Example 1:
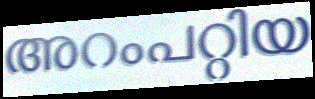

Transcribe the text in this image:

അറംപറ്റിയ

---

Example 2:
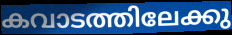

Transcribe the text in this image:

കവാടത്തിലേക്കു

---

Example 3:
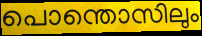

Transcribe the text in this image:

പൊന്തൊസിലും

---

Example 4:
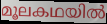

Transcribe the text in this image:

മൂലകഥയിൽ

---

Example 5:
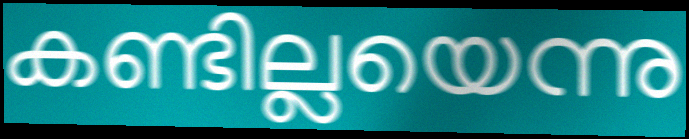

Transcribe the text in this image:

കണ്ടില്ലയെന്നു